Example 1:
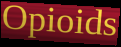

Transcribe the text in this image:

Opioids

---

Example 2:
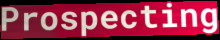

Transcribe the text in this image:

Prospecting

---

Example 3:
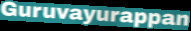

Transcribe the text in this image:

Guruvayurappan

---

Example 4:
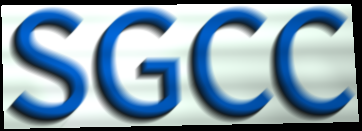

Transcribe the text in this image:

SGCC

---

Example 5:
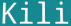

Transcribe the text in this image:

Kili